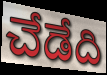
చేడేది